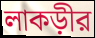
লাকড়ীর